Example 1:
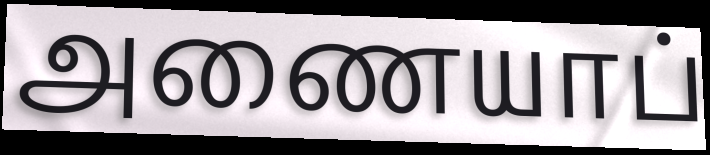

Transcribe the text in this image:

அணையாப்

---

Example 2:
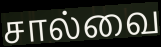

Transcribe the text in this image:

சால்வை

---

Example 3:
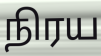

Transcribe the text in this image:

நிரய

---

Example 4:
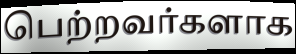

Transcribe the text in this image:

பெற்றவர்களாக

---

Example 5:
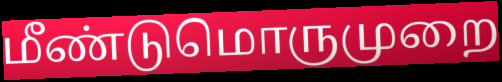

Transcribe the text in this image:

மீண்டுமொருமுறை